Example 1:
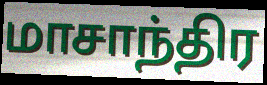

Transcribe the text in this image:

மாசாந்திர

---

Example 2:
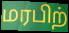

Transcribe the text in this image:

மரபிற்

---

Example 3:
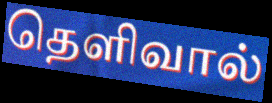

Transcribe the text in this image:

தெளிவால்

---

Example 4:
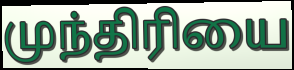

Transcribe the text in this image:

முந்திரியை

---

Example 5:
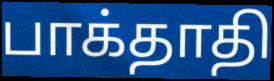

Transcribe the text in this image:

பாக்தாதி